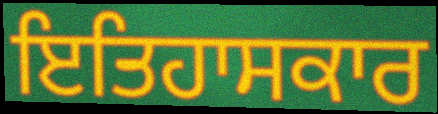
ਇਤਿਹਾਸਕਾਰ